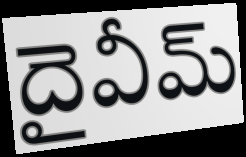
దైవీమ్